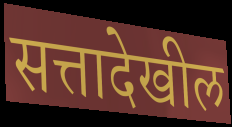
सत्तादेखील